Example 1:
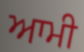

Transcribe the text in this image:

ਆਮੀ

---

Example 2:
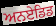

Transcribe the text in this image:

ਅਨਏਡਿਡ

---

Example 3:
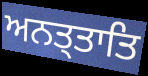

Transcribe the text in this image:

ਅਨਤ੍ਤਾਤਿ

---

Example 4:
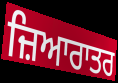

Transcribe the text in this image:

ਜ਼ਿਆਰਾਤਰ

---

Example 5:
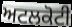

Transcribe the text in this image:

ਅਟਲਕੋਟੀ